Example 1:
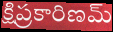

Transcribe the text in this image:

క్షిప్రకారిణమ్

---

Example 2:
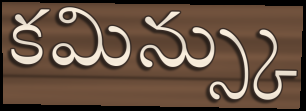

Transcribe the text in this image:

కమిన్స్కు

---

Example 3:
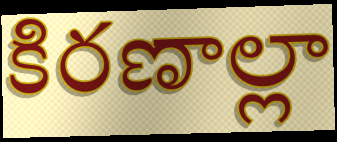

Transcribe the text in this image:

కిరణాల్లా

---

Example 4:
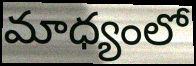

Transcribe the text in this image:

మాధ్యంలో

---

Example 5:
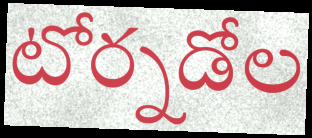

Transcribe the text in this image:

టోర్నడోల